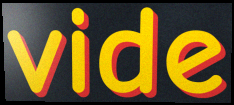
vide